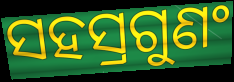
ସହସ୍ରଗୁଣଂ